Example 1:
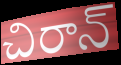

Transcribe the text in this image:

చిరాన్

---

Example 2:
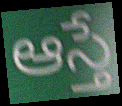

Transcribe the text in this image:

ఆస్తే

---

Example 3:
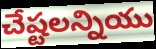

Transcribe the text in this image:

చేష్టలన్నియు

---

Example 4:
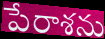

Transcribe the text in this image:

పేరాశను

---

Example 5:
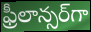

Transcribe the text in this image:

ఫ్రీలాన్సర్‌గా